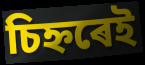
চিহ্নৰেই